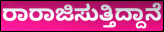
ರಾರಾಜಿಸುತ್ತಿದ್ದಾನೆ